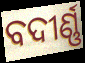
ବଦୀର୍ଣ୍ଣ